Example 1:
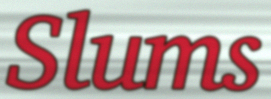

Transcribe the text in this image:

Slums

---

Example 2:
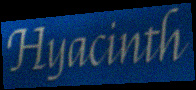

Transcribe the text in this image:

Hyacinth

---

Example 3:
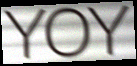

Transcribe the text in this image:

YOY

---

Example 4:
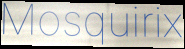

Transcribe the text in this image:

Mosquirix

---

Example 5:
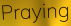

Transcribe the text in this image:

Praying